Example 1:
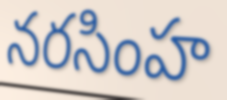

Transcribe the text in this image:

నరసింహ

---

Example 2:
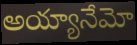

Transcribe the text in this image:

అయ్యానేమో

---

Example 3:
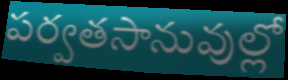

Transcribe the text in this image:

పర్వతసానువుల్లో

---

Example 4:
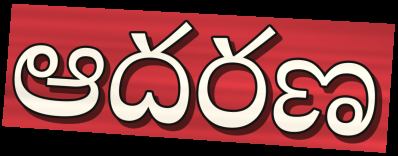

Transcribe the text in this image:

ఆదరణ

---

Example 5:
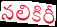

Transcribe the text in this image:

నలికిరీ